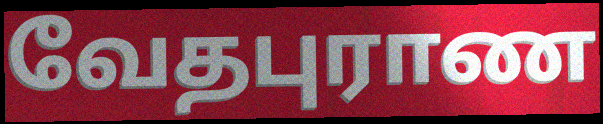
வேதபுராண